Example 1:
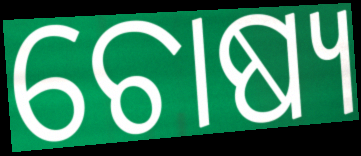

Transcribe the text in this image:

ଚୋଷ୍ୟ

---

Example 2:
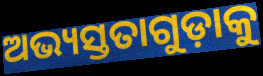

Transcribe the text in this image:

ଅଭ୍ୟସ୍ତତାଗୁଡ଼ାକୁ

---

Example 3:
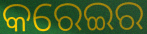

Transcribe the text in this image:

କରେଇର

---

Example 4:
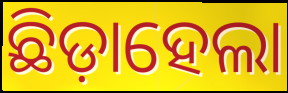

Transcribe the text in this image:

ଛିଡ଼ାହେଲା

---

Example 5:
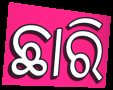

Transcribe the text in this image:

ଛାରି